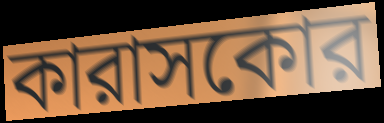
কারাসকোর